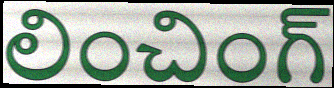
లించింగ్